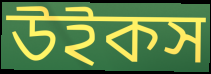
উইকস